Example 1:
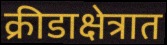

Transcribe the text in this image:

क्रीडाक्षेत्रात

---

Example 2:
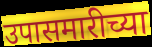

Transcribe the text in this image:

उपासमारीच्या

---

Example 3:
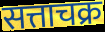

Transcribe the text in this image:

सत्ताचक्र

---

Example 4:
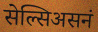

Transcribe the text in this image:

सेल्सिअसनं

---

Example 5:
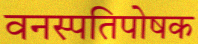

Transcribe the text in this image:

वनस्पतिपोषक